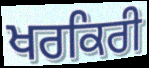
ਖਰਕਿਰੀ